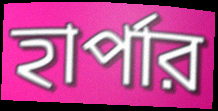
হার্পার